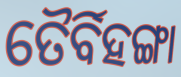
ତୈର୍ବିହଙ୍ଗା